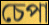
চেপা